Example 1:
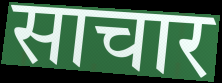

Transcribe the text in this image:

साचार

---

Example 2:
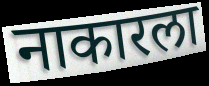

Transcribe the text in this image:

नाकारला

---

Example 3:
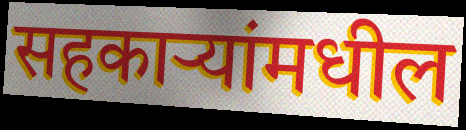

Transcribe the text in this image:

सहकाऱ्यांमधील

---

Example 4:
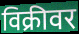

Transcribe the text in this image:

विक्रीवर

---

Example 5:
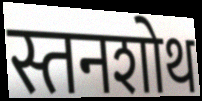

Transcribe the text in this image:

स्तनशोथ